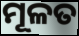
ମୂଳତ